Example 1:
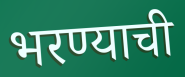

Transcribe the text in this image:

भरण्याची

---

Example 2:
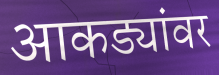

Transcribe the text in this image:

आकड्यांवर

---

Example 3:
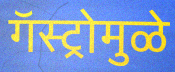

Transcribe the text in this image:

गॅस्ट्रोमुळे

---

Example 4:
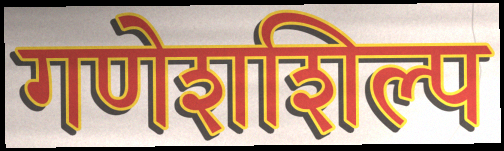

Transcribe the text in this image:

गणेशशिल्प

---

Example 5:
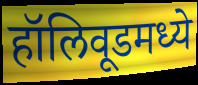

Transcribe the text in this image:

हॉलिवूडमध्ये